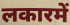
लकारमें